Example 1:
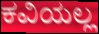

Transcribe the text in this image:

ಕವಿಯಲ್ಲ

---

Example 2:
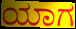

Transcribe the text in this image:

ಯಾಗ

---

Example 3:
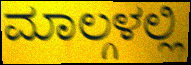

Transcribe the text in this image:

ಮಾಲ್ಗಳಲ್ಲಿ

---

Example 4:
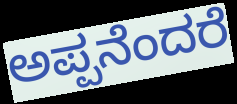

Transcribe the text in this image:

ಅಪ್ಪನೆಂದರೆ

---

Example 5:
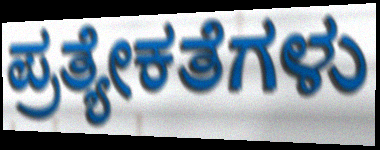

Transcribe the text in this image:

ಪ್ರತ್ಯೇಕತೆಗಳು